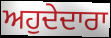
ਅਹੁਦੇਦਾਰਾ